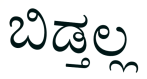
ಬಿಡ್ತಲ್ಲ